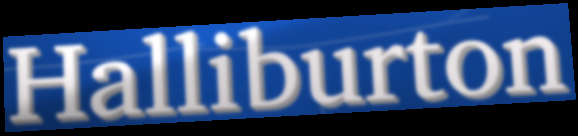
Halliburton